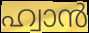
ഹ്വാൻ